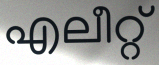
എലീറ്റ്